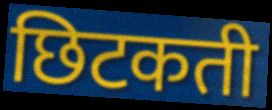
छिटकती